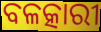
ବଳତ୍କାରୀ